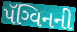
પૅંગ્વિનની